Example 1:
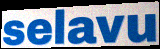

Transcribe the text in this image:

selavu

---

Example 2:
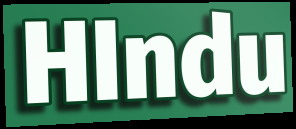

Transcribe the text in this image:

HIndu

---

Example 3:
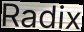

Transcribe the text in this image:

Radix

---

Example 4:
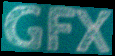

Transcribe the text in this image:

GFX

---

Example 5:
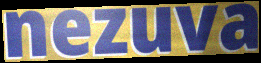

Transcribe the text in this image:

nezuva